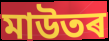
মাউতৰ